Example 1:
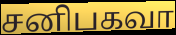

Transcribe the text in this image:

சனிபகவா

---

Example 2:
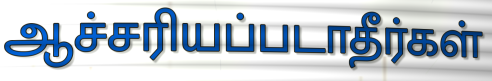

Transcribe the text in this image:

ஆச்சரியப்படாதீர்கள்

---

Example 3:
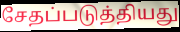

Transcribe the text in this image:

சேதப்படுத்தியது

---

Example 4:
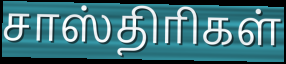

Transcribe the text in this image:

சாஸ்திரிகள்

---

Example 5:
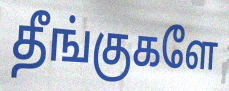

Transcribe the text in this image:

தீங்குகளே